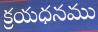
క్రయధనము